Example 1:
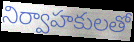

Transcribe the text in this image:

నిర్వాహకులతో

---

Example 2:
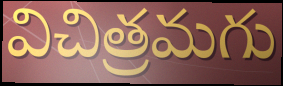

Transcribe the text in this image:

విచిత్రమగు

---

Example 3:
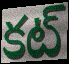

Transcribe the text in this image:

కట్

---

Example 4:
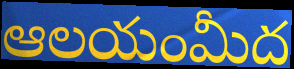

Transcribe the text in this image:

ఆలయంమీద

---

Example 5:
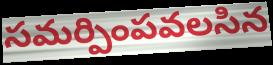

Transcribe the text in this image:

సమర్పింపవలసిన